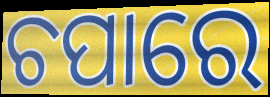
ଚପାରେ